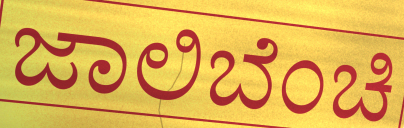
ಜಾಲಿಬೆಂಚಿ